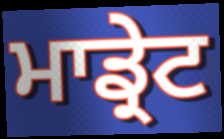
ਮਾਡ੍ਰੇਟ